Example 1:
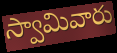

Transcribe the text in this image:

స్వామివారు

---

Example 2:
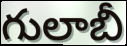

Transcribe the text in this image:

గులాబీ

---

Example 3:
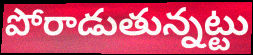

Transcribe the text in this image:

పోరాడుతున్నట్టు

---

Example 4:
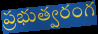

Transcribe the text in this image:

ప్రభుత్వరంగ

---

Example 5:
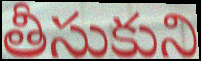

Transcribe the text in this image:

తీసుకుని